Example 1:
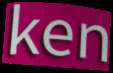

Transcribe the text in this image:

ken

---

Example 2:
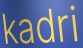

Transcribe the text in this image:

kadri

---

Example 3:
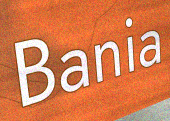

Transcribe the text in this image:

Bania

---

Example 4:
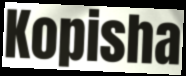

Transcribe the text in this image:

Kopisha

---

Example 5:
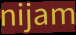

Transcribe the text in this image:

nijam